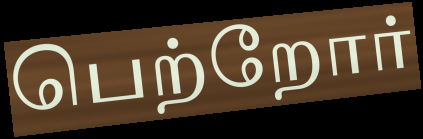
பெற்றோர்